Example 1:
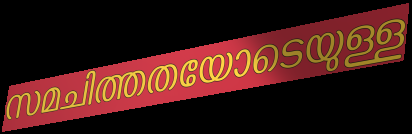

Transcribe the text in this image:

സമചിത്തതയോടെയുള്ള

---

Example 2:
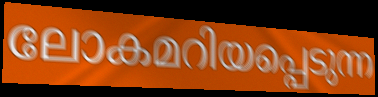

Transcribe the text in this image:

ലോകമറിയപ്പെടുന്ന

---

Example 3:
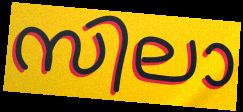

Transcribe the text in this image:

സിലാ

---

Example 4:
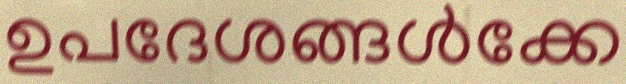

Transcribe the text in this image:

ഉപദേശങ്ങൾക്കേ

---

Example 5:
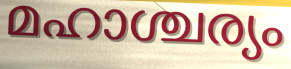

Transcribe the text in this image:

മഹാശ്ചര്യം